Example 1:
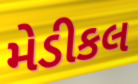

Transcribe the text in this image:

મેડીકલ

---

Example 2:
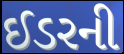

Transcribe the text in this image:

ઈડરની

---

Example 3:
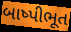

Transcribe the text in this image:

બાષ્પીભૂત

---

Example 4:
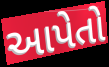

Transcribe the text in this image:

આપેતો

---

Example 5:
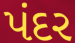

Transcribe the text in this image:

પંદર